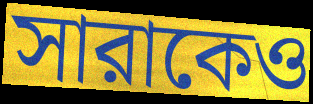
সারাকেও